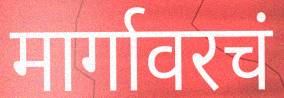
मार्गावरचं